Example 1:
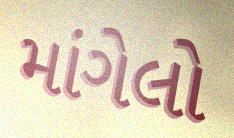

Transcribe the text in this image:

માંગેલો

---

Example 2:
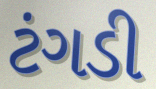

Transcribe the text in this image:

ટંગડી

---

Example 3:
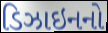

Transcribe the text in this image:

ડિઝાઇનનો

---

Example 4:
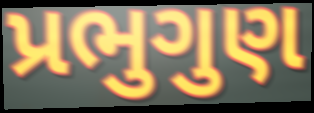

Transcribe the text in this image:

પ્રભુગુણ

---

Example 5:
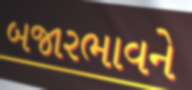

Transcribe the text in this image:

બજારભાવને